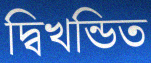
দ্বিখন্ডিত